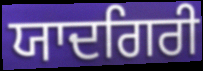
ਯਾਦਗਿਰੀ